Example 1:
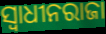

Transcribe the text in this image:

ସ୍ୱାଧୀନରାଜା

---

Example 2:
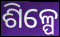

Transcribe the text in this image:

ଶିଳ୍ପେ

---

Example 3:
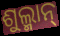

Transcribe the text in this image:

ଶୁଲ୍ମାନ୍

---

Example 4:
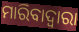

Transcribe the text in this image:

ମାରିବାଦ୍ୱାରା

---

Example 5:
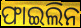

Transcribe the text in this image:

ଫାଇଲିନ